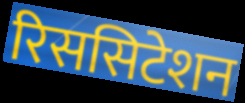
रिससिटेशन